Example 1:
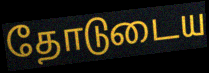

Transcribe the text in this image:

தோடுடைய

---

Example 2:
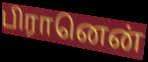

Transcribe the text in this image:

பிரானென்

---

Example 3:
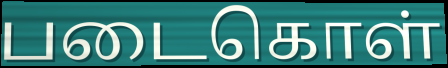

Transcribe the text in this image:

படைகொள்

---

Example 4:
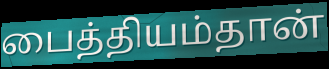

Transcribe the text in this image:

பைத்தியம்தான்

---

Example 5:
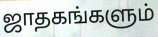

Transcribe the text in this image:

ஜாதகங்களும்